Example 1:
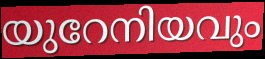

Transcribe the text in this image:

യുറേനിയവും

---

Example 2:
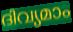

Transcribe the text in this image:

ദിവ്യമാം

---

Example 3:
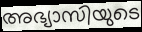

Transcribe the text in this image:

അഭ്യാസിയുടെ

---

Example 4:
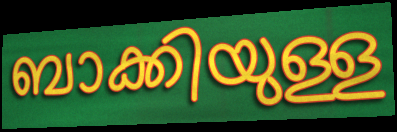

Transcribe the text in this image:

ബാക്കിയുള്ള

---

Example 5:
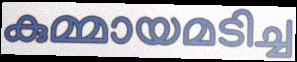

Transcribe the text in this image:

കുമ്മായമടിച്ച